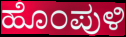
ಹೊಂಪುಳಿ